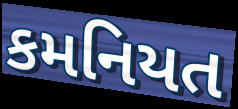
કમનિયત